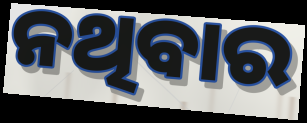
ନଥିବାର